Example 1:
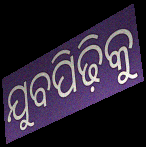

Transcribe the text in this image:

ଯୁବପିଢ଼ିକୁ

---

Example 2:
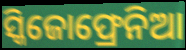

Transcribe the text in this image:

ସ୍କିଜୋଫ୍ରେନିଆ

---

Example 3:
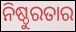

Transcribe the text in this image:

ନିଷ୍ଠୁରତାର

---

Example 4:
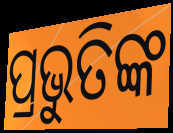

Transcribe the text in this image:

ପ୍ରଭୁତିଙ୍କ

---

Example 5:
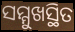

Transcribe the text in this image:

ସମ୍ମୁଖସ୍ଥିତ